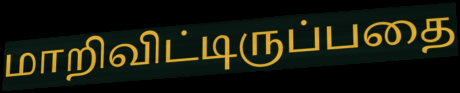
மாறிவிட்டிருப்பதை